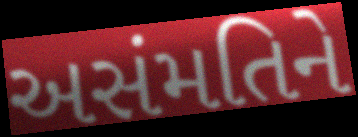
અસંમતિને